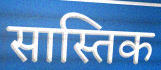
सास्तिक